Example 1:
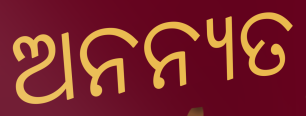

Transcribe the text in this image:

ଅନନ୍ୟତ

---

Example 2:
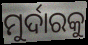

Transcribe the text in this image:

ମୁର୍ଦାରକୁ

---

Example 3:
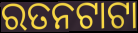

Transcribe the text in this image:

ରତନଟାଟା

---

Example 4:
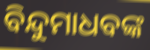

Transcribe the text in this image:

ବିନ୍ଦୁମାଧବଙ୍କ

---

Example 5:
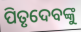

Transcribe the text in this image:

ପିତୃଦେବଙ୍କୁ